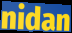
nidan